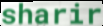
sharir